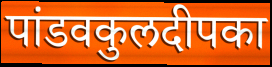
पांडवकुलदीपका